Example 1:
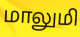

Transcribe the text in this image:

மாலுமி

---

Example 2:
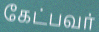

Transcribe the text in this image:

கேட்பவர்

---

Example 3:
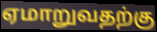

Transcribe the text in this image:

ஏமாறுவதற்கு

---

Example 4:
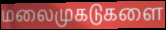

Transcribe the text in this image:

மலைமுகடுகளை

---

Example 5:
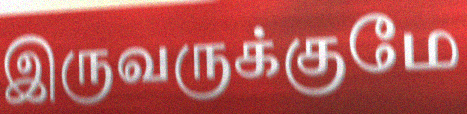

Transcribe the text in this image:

இருவருக்குமே